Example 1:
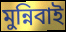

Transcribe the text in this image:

মুন্নিবাই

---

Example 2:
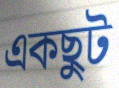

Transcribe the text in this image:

একছুট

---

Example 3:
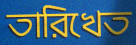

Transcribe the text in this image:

তারিখেত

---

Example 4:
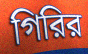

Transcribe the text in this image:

গিরির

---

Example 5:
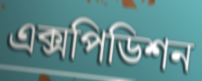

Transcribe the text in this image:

এক্সপিডিশন